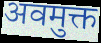
अवमुक्त